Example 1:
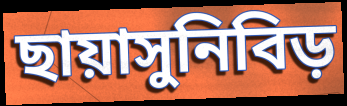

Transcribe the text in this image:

ছায়াসুনিবিড়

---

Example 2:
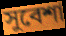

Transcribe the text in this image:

সুবেশা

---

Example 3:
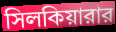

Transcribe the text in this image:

সিলকিয়ারার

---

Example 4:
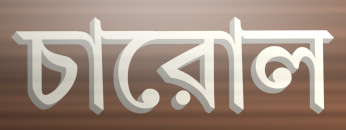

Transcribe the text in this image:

চারোল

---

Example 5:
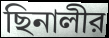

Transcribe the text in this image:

ছিনালীর